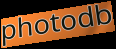
photodb